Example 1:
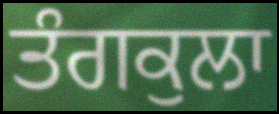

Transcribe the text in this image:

ਤੰਗਕੁਲਾ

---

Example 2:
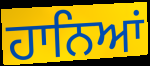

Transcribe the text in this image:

ਹਾਨਿਆਂ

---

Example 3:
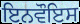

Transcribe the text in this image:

ਇਨਵੌਇਸ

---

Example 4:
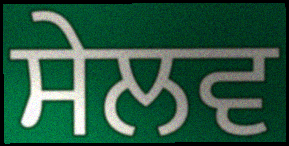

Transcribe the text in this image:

ਸੇਲਵ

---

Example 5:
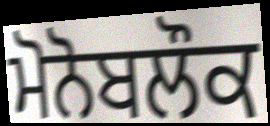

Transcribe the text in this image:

ਮੋਨੋਬਲੌਕ